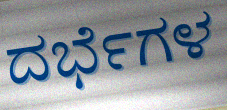
ದರ್ಭೆಗಳ